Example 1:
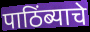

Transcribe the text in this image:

पाठिंब्याचे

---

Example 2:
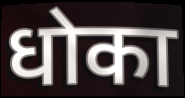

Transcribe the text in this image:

धोका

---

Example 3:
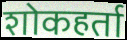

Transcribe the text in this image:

शोकहर्ता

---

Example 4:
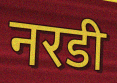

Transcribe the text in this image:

नरडी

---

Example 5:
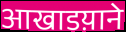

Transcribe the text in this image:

आखाडय़ाने